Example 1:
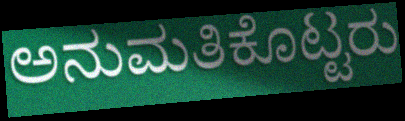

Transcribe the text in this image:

ಅನುಮತಿಕೊಟ್ಟರು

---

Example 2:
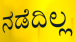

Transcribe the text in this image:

ನಡೆದಿಲ್ಲ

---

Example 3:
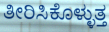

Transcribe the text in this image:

ತೀರಿಸಿಕೊಳ್ಳುತ್ತ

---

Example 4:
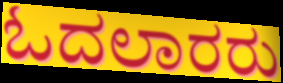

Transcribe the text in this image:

ಓದಲಾರರು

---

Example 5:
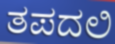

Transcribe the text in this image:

ತಪದಲಿ